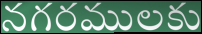
నగరములకు